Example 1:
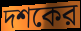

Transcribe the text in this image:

দশকের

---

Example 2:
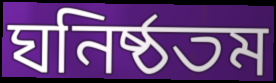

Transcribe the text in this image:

ঘনিষ্ঠতম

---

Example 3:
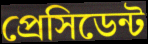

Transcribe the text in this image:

প্রেসিডেন্ট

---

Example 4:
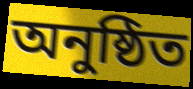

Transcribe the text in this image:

অনুষ্ঠিত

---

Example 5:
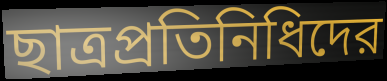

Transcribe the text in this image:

ছাত্রপ্রতিনিধিদের